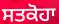
ਸਤਕੋਹਾ